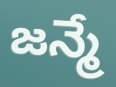
జన్మే